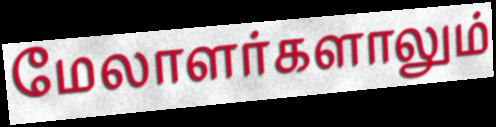
மேலாளர்களாலும்